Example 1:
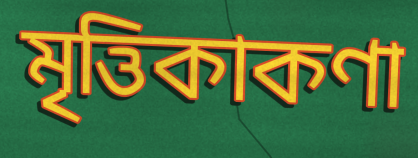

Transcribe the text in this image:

মৃত্তিকাকণা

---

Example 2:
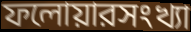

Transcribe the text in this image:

ফলোয়ারসংখ্যা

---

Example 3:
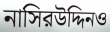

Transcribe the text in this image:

নাসিরউদ্দিনও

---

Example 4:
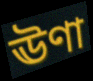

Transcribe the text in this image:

ঊণা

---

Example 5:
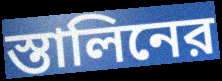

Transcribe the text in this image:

স্তালিনের